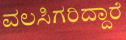
ವಲಸಿಗರಿದ್ದಾರೆ